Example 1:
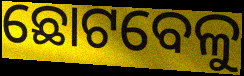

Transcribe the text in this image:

ଛୋଟବେଳୁ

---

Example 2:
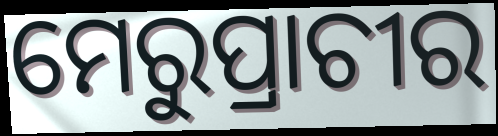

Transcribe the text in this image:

ମେରୁପ୍ରାଚୀର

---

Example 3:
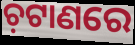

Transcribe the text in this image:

ଚ଼ଟାଣରେ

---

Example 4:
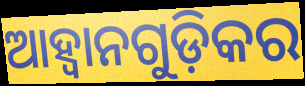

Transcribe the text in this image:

ଆହ୍ଵାନଗୁଡ଼ିକର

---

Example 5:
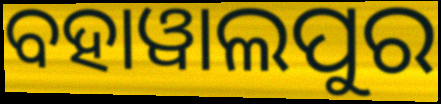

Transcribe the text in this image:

ବହାୱାଲପୁର